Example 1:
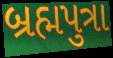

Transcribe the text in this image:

બ્રહ્મપુત્રા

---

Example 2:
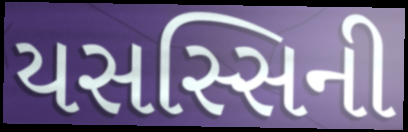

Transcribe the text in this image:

યસસ્સિની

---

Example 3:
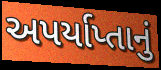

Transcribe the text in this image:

અપર્યાપ્તાનું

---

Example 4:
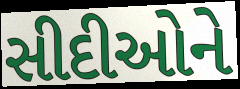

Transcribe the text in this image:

સીદીઓને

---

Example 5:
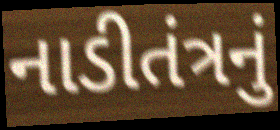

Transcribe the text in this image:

નાડીતંત્રનું